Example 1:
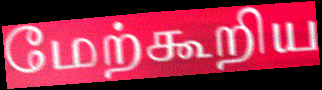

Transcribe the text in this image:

மேற்கூறிய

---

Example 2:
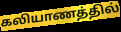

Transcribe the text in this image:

கலியாணத்தில்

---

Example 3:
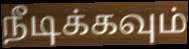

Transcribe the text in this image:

நீடிக்கவும்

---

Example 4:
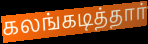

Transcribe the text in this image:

கலங்கடித்தார்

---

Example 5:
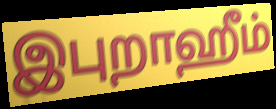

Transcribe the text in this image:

இபுறாஹீம்